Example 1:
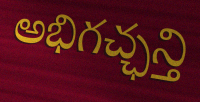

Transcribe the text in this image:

అభిగచ్ఛన్తి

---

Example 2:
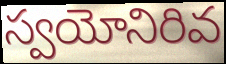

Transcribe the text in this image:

స్వయోనిరివ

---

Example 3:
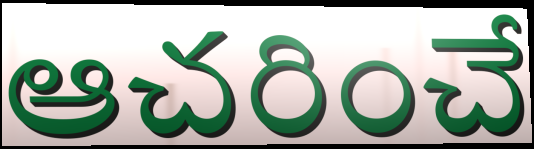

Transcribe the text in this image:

ఆచరించే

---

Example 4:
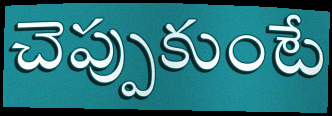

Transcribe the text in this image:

చెప్పుకుంటే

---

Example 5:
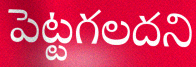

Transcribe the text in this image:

పెట్టగలదని